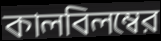
কালবিলম্বের